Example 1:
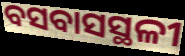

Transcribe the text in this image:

ବସବାସସ୍ଥଳୀ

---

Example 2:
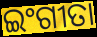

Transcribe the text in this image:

ଇଂଗୀତା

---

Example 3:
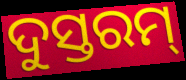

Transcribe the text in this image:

ଦୁସ୍ତରମ୍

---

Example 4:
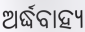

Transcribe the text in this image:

ଅର୍ଦ୍ଧବାହ୍ୟ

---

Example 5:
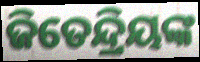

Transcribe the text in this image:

ଜିତେନ୍ଦ୍ରିୟଙ୍କ